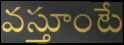
వస్తూంటే